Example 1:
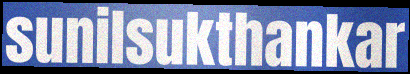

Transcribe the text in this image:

sunilsukthankar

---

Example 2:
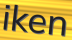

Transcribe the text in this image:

iken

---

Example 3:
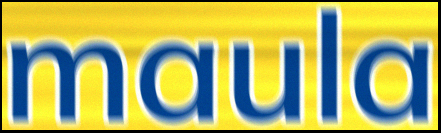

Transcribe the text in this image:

maula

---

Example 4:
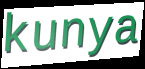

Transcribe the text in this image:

kunya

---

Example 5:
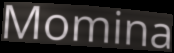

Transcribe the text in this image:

Momina